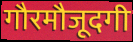
गौरमौजूदगी